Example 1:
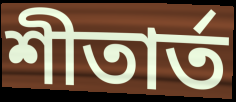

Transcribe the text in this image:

শীতার্ত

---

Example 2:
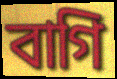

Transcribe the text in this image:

বাগি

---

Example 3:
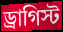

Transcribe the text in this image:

ড্রাগিস্ট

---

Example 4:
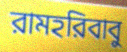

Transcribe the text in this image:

রামহরিবাবু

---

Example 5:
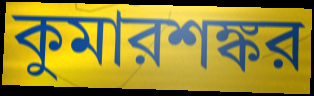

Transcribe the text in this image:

কুমারশঙ্কর